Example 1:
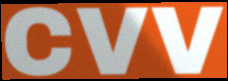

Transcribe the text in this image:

CVV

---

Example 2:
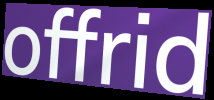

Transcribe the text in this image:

offrid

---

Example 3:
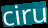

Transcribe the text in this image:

ciru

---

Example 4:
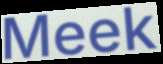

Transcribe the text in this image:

Meek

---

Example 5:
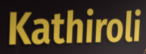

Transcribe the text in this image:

Kathiroli